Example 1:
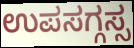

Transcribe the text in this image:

ಉಪಸಗ್ಗಸ್ಸ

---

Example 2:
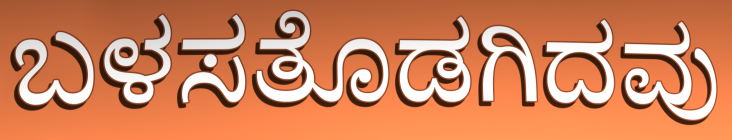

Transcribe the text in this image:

ಬಳಸತೊಡಗಿದವು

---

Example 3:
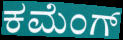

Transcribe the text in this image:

ಕಮೆಂಗ್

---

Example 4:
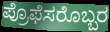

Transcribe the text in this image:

ಪ್ರೊಫೆಸರೊಬ್ಬರ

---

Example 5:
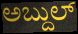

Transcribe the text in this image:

ಅಬ್ದುಲ್